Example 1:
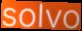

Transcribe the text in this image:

solvo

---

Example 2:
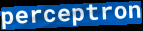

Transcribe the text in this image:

perceptron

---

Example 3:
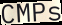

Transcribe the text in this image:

CMPs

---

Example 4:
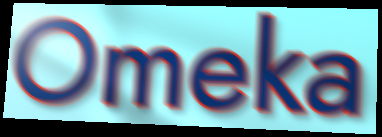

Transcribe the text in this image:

Omeka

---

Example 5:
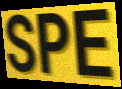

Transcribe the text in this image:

SPE